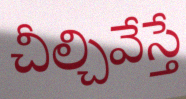
చీల్చివేస్తే